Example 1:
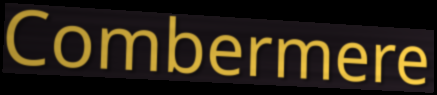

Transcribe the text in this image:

Combermere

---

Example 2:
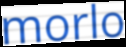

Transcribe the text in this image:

morlo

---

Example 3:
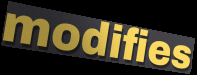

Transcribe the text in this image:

modifies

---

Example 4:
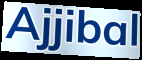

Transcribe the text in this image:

Ajjibal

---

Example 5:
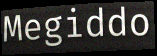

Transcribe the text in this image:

Megiddo